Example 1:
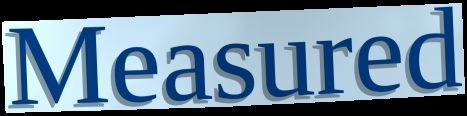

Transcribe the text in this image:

Measured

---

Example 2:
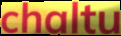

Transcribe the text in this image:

chaltu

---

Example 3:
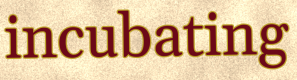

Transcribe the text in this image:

incubating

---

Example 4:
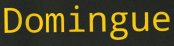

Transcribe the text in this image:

Domingue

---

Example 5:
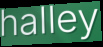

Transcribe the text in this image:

halley